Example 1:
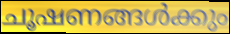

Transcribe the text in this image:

ചൂഷണങ്ങൾക്കും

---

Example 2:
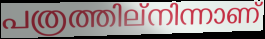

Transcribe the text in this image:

പത്രത്തില്നിന്നാണ്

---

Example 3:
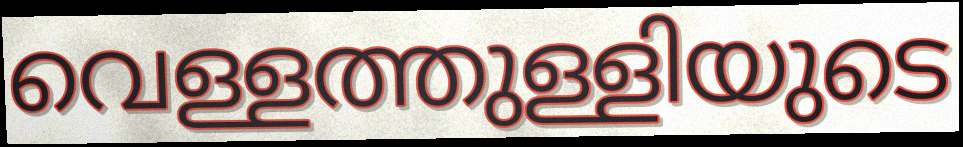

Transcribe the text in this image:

വെള്ളത്തുള്ളിയുടെ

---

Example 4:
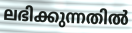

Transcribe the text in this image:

ലഭിക്കുന്നതിൽ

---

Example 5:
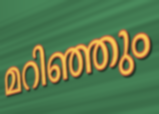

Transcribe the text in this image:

മറിഞ്ഞും